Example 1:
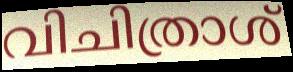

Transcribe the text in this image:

വിചിത്രാശ്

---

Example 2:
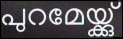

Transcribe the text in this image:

പുറമേയ്ക്കു്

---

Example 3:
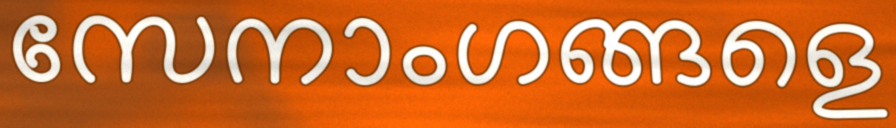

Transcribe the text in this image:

സേനാംഗങ്ങളെ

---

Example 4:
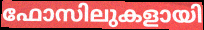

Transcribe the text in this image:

ഫോസിലുകളായി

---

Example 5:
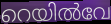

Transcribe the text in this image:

റെയിൽവേ